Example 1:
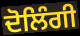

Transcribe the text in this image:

ਦੋਲਿੰਗੀ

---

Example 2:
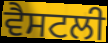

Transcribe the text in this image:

ਵੈਸਟਲੀ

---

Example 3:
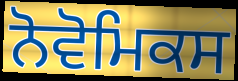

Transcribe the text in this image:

ਨੋਵੋਮਿਕਸ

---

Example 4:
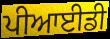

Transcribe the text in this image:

ਪੀਆਈਡੀ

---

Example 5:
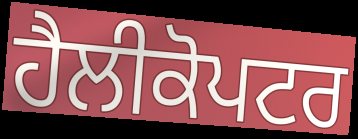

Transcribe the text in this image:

ਹੈਲੀਕੋਪਟਰ